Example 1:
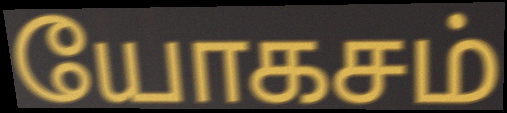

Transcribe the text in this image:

யோகசம்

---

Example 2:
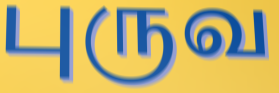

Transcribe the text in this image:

புருவ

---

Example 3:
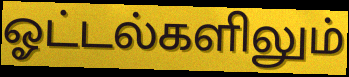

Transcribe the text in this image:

ஓட்டல்களிலும்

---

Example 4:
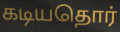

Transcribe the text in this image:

கடியதொர்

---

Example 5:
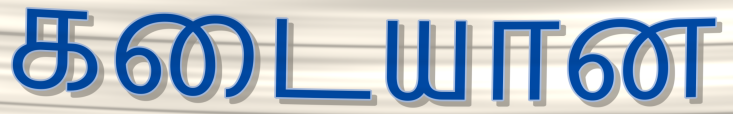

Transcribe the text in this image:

கடையான